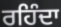
ਰਹਿੰਦਾ